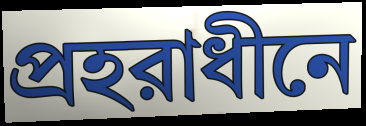
প্রহরাধীনে